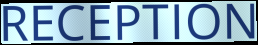
RECEPTION